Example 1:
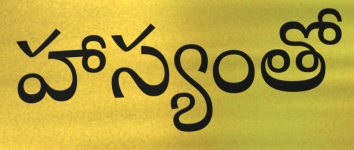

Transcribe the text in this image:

హాస్యంతో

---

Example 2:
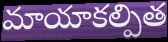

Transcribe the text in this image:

మాయాకల్పిత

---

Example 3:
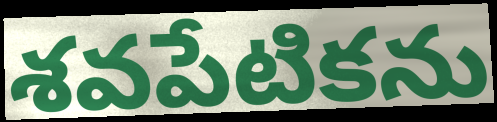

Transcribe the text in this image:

శవపేటికను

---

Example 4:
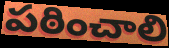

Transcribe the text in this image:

పఠించాలి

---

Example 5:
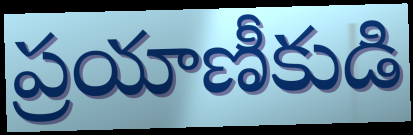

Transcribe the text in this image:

ప్రయాణీకుడి